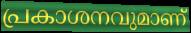
പ്രകാശനവുമാണ്